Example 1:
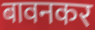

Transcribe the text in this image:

बावनकर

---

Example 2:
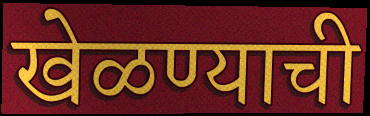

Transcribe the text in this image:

खेळण्याची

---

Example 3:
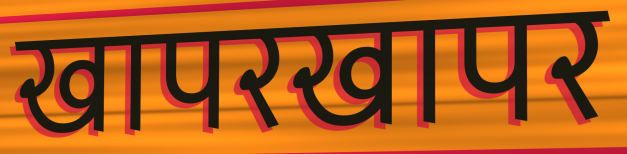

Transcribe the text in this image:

खापरखापर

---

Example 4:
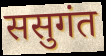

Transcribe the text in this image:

ससुगंत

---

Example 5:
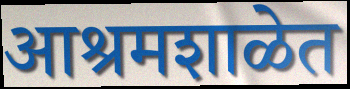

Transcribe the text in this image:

आश्रमशाळेत